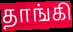
தாங்கி